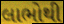
લાભોથી